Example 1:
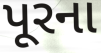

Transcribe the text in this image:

પૂરના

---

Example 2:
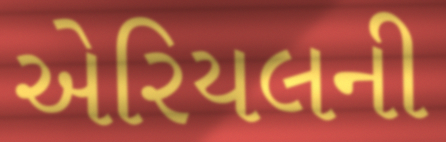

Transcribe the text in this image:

એરિયલની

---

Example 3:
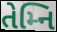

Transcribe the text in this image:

તેમ્નિ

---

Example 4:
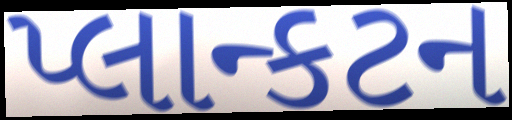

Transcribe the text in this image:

પ્લાન્કટન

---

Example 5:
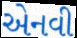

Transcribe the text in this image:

એનવી